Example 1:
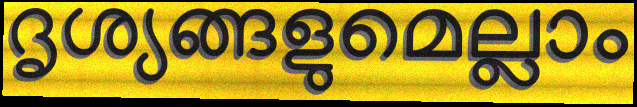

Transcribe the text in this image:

ദൃശ്യങ്ങളുമെല്ലാം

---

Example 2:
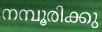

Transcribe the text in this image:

നമ്പൂരിക്കു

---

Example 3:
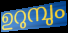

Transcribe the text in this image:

ഉറുമ്പും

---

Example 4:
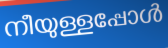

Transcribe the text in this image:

നീയുള്ളപ്പോൾ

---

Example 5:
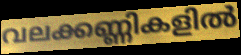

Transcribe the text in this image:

വലക്കണ്ണികളിൽ